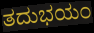
ತದುಭಯಂ